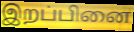
இறப்பினை